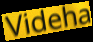
Videha